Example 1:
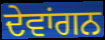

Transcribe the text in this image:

ਦੇਵਾਂਗਨ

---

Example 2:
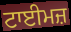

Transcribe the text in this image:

ਟਾਈਮਜ਼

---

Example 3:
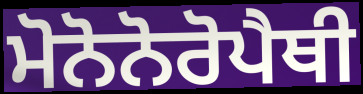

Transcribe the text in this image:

ਮੋਨੋਨੋਰੋਪੈਥੀ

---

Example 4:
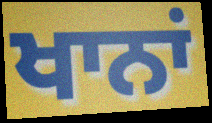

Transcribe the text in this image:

ਖਾਨਾਂ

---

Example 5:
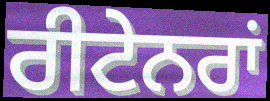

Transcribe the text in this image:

ਰੀਟੇਨਰਾਂ